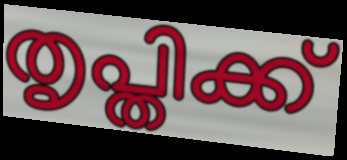
തൃപ്തിക്ക്